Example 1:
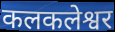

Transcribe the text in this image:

कलकलेश्वर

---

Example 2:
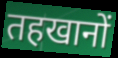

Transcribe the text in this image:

तहखानों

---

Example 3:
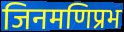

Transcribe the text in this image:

जिनमणिप्रभ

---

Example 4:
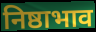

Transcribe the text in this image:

निष्ठाभाव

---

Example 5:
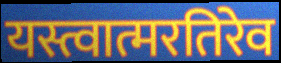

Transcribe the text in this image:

यस्त्वात्मरतिरेव